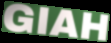
GIAH